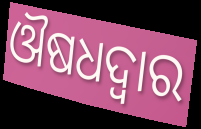
ଔଷଧଦ୍ୱାର